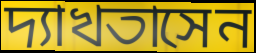
দ্যাখতাসেন